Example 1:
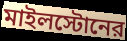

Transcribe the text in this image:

মাইলস্টোনের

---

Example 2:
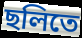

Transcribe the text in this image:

ছলিতে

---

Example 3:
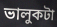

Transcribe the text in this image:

ভালুকটা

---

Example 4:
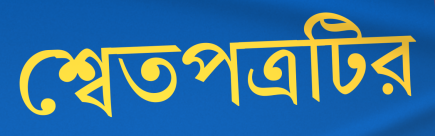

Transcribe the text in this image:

শ্বেতপত্রটির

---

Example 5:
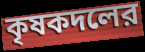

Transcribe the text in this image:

কৃষকদলের